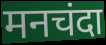
मनचंदा